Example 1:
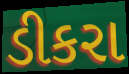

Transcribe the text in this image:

ડીકરા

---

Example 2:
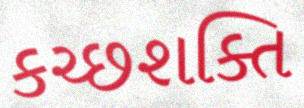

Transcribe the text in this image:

કચ્છશક્તિ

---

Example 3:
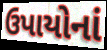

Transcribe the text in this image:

ઉપાયોનાં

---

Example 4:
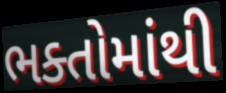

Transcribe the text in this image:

ભક્તોમાંથી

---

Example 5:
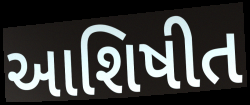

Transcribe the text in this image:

આશિષીત